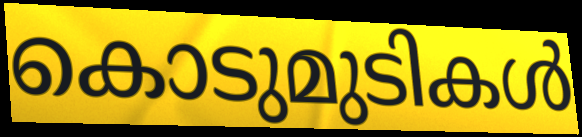
കൊടുമുടികൾ